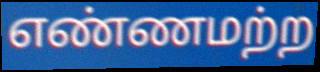
எண்ணமற்ற